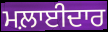
ਮਲ਼ਾਈਦਾਰ